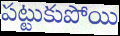
పట్టుకుపోయి